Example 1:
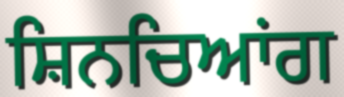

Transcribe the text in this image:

ਸ਼ਿਨਚਿਆਂਗ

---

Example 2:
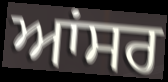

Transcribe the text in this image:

ਆਂਸਰ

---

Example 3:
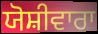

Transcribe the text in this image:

ਯੋਸ਼ੀਵਾਰਾ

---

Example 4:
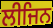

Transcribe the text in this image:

ਲੀਜਿਨ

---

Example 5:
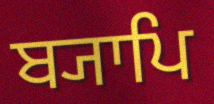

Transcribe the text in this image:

ਬ੍ਯਾਪਿ